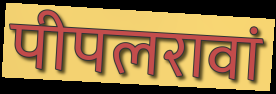
पीपलरावां